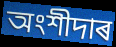
অংশীদাৰ